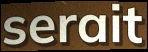
serait